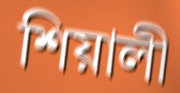
শিয়ালী